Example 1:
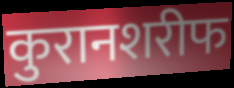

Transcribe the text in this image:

कुरानशरीफ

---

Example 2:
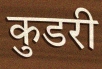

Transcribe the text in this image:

कुडरी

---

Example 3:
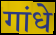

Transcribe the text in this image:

गांधे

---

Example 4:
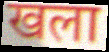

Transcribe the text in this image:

खला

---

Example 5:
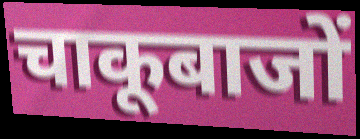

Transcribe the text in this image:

चाकूबाजों